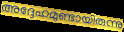
അദ്ദേഹമുണ്ടായിരുന്നു